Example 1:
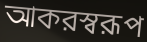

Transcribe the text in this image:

আকরস্বরূপ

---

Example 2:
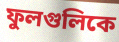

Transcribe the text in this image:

ফুলগুলিকে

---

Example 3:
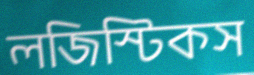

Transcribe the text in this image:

লজিস্টিকস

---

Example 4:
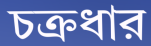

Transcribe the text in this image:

চক্রধার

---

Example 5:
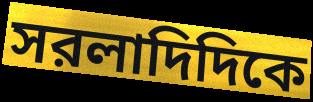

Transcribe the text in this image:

সরলাদিদিকে